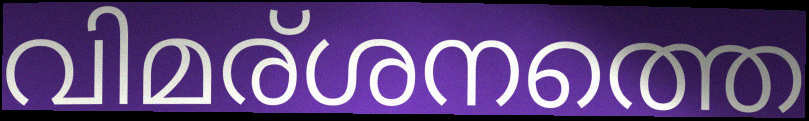
വിമര്ശനത്തെ